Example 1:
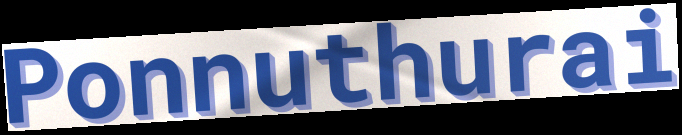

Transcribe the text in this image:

Ponnuthurai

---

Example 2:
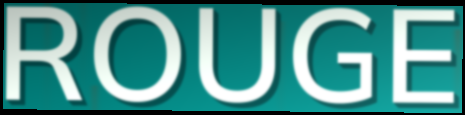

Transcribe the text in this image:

ROUGE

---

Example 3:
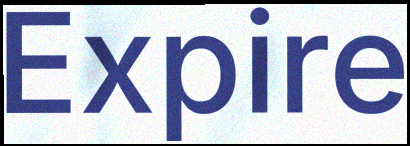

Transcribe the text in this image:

Expire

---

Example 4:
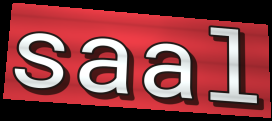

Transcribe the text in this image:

saal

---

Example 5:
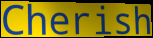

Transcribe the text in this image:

Cherish